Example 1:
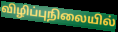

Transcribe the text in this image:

விழிப்புநிலையில்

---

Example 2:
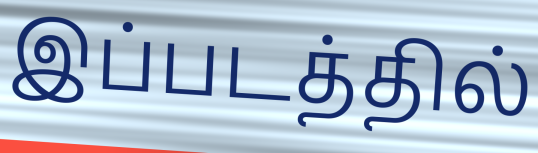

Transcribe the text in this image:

இப்படத்தில்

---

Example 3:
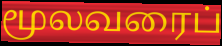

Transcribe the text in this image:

மூலவரைப்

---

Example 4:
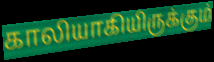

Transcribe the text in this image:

காலியாகியிருக்கும்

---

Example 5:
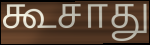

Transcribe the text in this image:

கூசாது